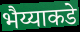
भैय्याकडे